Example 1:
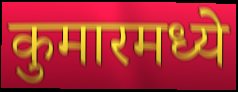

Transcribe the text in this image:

कुमारमध्ये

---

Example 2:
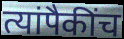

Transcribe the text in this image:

त्यांपैकींच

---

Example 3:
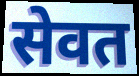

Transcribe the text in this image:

सेवत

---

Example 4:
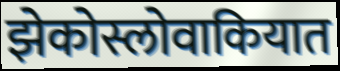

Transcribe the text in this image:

झेकोस्लोवाकियात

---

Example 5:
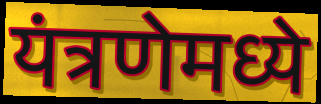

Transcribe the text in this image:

यंत्रणेमध्ये